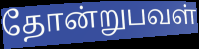
தோன்றுபவள்